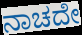
ನಾಚದೇ